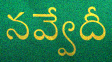
నవ్వేదీ